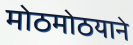
मोठमोठयाने